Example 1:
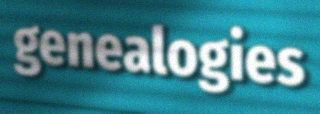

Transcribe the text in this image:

genealogies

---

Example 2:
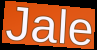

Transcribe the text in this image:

Jale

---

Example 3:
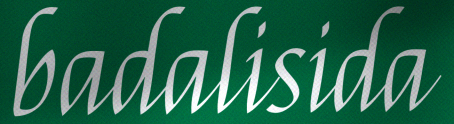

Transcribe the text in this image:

badalisida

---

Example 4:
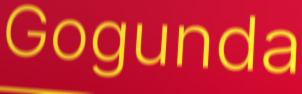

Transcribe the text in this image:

Gogunda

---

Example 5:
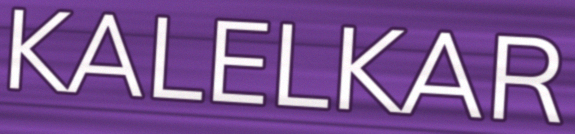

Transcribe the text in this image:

KALELKAR